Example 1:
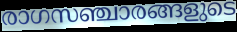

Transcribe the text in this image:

രാഗസഞ്ചാരങ്ങളുടെ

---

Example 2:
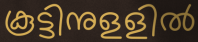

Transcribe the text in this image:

കൂട്ടിനുളളിൽ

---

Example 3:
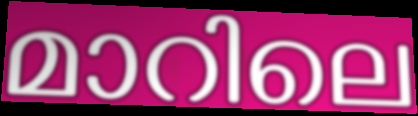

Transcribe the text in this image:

മാറിലെ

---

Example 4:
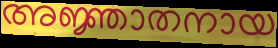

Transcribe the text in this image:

അജ്ഞാതനായ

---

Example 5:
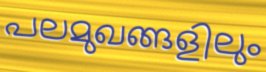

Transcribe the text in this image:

പലമുഖങ്ങളിലും